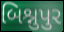
બિશ્નુપુર